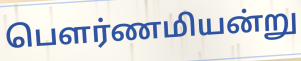
பெளர்ணமியன்று